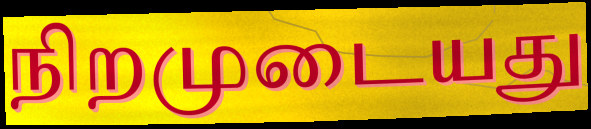
நிறமுடையது